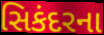
સિકંદરના